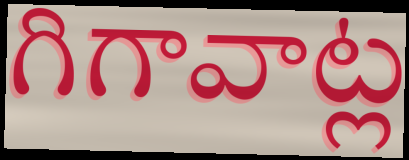
గిగావాట్ల